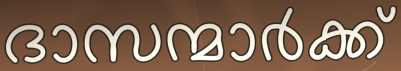
ദാസന്മാർക്ക്